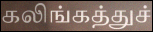
கலிங்கத்துச்